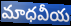
మాధవీయ